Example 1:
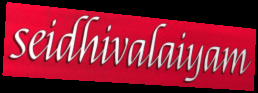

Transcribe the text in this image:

seidhivalaiyam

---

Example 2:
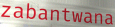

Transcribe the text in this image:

zabantwana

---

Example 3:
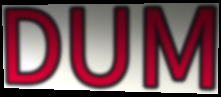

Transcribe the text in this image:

DUM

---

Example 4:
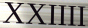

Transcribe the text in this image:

XXIIII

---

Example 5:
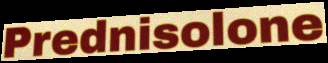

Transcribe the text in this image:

Prednisolone